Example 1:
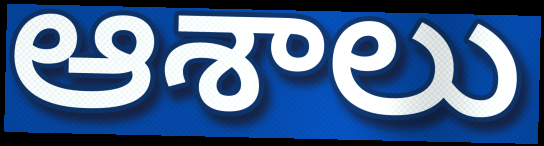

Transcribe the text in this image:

ఆశాలు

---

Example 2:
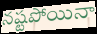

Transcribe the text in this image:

నష్టపోయినా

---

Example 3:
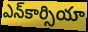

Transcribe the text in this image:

ఎన్‌కార్సియా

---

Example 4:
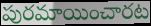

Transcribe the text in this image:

పురమాయించారట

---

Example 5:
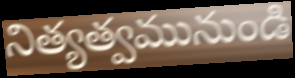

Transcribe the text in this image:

నిత్యత్వమునుండి